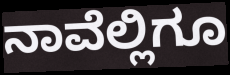
ನಾವೆಲ್ಲಿಗೂ